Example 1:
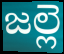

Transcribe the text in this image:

జల్లె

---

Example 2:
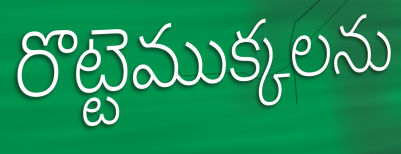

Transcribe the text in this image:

రొట్టెముక్కలను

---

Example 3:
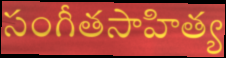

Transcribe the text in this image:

సంగీతసాహిత్య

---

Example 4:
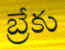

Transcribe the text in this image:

బ్రేకు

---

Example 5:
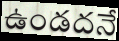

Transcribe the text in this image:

ఉండదనే